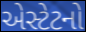
એસ્ટેટનો